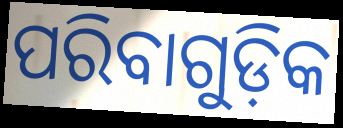
ପରିବାଗୁଡ଼ିକ